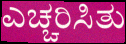
ಎಚ್ಚರಿಸಿತು